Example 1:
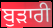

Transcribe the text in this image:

ਬੁੜਾਰੀ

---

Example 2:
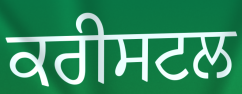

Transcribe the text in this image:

ਕਰੀਸਟਲ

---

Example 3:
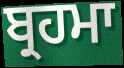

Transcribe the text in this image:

ਬ੍ਰਹਮਾ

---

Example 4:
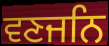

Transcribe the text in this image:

ਵਣਜਨਿ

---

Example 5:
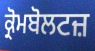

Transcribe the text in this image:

ਕ੍ਰੋਮਬੋਲਟਜ਼